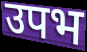
उपभ